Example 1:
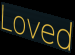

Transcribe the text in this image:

Loved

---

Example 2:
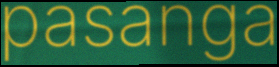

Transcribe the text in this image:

pasanga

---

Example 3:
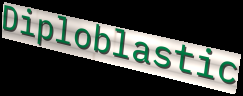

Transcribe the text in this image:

Diploblastic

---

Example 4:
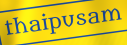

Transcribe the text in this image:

thaipusam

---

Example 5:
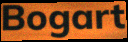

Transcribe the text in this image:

Bogart